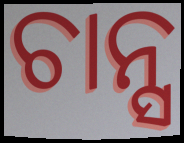
ଚାନ୍ସ